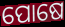
ପୋଷେ